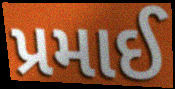
પ્રમાઈ